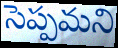
సెప్పమని